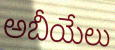
అబీయేలు